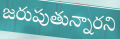
జరుపుతున్నారని